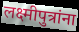
लक्ष्मीपुत्रांना